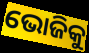
ଭୋଜିକୁ